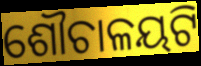
ଶୌଚାଳୟଟି